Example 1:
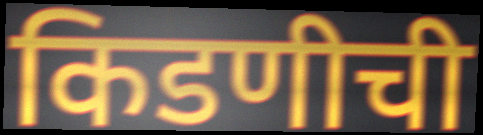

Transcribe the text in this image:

किडणीची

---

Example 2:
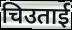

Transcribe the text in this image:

चिउताई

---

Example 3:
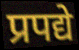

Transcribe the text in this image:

प्रपद्ये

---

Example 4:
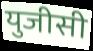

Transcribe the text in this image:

युजीसी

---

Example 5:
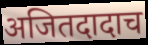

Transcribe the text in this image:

अजितदादाच